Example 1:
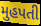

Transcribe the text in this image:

મુહપતી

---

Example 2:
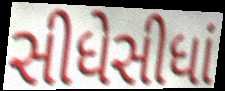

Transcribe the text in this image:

સીધેસીધાં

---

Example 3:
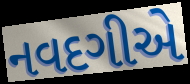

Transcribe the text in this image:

નવદગીએ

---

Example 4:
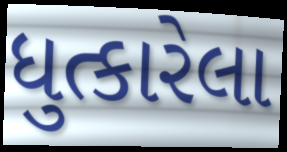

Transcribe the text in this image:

ધુત્કારેલા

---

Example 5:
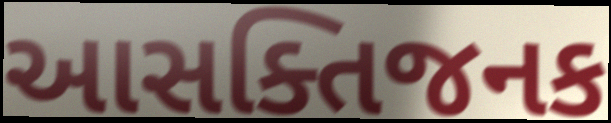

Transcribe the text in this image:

આસક્તિજનક